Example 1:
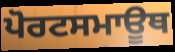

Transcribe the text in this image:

ਪੋਰਟਸਮਾਊਥ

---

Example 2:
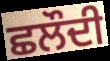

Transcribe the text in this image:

ਛਲੌਦੀ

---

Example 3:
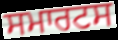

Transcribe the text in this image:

ਸਮਾਰਟਸ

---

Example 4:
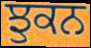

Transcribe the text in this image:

ਝੁਕਨ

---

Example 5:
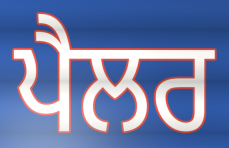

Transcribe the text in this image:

ਪੈਲਰ